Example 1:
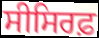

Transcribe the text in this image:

ਸੀਸਿਰਫ਼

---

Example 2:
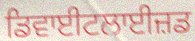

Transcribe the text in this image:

ਡਿਵਾਈਟਲਾਈਜ਼ਡ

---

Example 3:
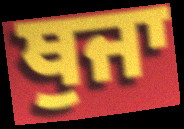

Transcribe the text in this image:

ਥੁਜਾ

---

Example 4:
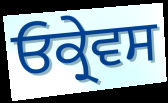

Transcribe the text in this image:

ਓਕ੍ਰੇਵਸ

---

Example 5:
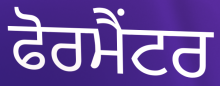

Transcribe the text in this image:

ਫੋਰਮੈਂਟਰ